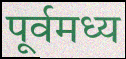
पूर्वमध्य